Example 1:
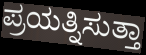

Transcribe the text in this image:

ಪ್ರಯತ್ನಿಸುತ್ತಾ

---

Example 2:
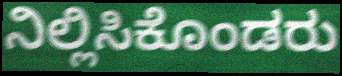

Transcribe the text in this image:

ನಿಲ್ಲಿಸಿಕೊಂಡರು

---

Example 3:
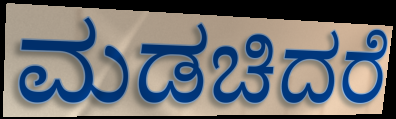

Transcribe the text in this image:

ಮಡಚಿದರೆ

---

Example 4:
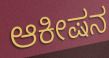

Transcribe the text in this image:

ಆಕೀಷನ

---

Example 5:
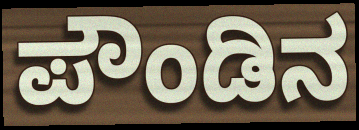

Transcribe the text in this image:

ಪೌಂಡಿನ